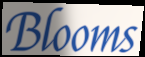
Blooms